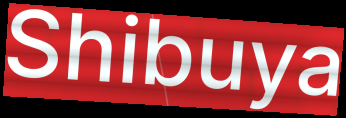
Shibuya